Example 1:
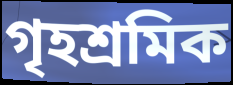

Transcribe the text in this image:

গৃহশ্রমিক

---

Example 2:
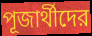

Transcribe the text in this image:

পূজার্থীদের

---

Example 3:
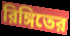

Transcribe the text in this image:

রিঙ্গিতের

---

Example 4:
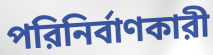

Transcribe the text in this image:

পরিনির্বাণকারী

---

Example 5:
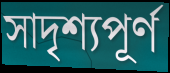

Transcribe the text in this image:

সাদৃশ্যপূর্ণ